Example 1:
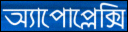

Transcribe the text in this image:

অ্যাপোপ্লেক্সি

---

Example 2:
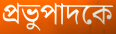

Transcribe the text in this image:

প্রভুপাদকে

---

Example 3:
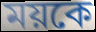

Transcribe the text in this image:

ময়কে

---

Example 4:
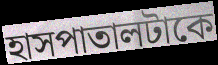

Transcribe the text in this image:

হাসপাতালটাকে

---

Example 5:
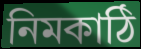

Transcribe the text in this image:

নিমকাঠি